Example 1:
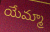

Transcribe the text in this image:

యేమ్మా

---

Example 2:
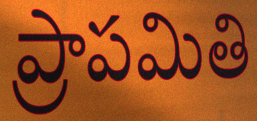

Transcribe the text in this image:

ప్రాపమితి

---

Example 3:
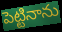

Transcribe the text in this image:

పెట్టినాను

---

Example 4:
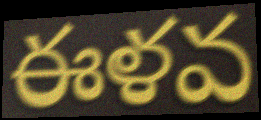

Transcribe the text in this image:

ఈళవ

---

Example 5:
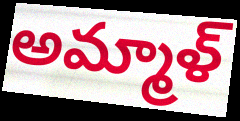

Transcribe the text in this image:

అమ్మాళ్